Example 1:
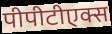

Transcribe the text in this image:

पीपीटीएक्स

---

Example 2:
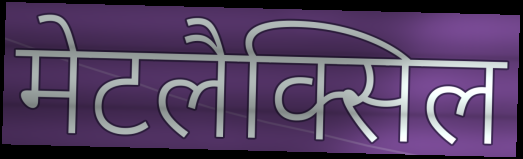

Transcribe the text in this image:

मेटलैक्सिल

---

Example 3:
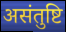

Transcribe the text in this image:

असंतुष्टि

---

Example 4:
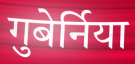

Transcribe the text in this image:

गुबेर्निया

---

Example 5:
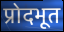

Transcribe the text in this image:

प्रोदभूत